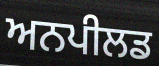
ਅਨਪੀਲਡ